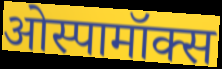
ओस्पामॉक्स